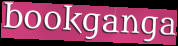
bookganga